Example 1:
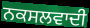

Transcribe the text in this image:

ਨਕਸਲਵਾਦੀ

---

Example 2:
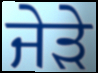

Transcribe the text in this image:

ਜੇੜੇ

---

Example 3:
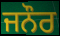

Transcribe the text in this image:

ਜਨੌਰ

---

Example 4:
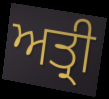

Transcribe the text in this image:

ਅਤ੍ਰੀ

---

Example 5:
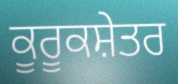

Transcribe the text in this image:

ਕੂਰੂਕਸ਼ੇਤਰ